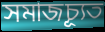
সমাজচ্যূত